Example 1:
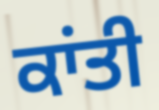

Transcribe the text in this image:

ਕਾਂਤੀ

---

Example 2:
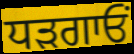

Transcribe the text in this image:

ਧੜਗਾਓਂ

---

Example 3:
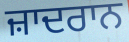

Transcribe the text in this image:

ਜ਼ਾਦਰਾਨ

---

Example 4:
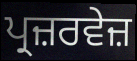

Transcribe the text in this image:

ਪ੍ਰਜ਼ਰਵੇਜ਼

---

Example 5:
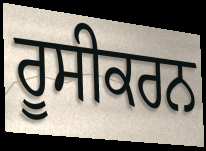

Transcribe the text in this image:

ਰੂਸੀਕਰਨ